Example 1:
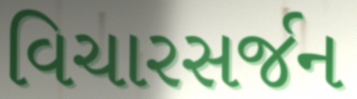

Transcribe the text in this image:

વિચારસર્જન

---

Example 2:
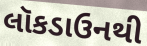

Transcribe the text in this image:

લૉકડાઉનથી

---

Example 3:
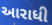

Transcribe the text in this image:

આરાધી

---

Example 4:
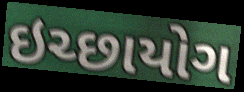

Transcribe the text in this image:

ઇચ્છાયોગ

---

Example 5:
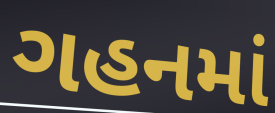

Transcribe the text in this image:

ગહનમાં